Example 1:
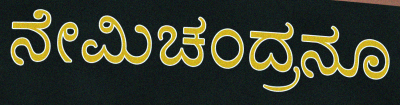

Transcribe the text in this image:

ನೇಮಿಚಂದ್ರನೂ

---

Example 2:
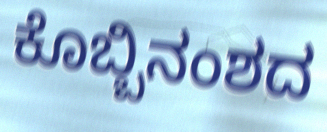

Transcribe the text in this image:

ಕೊಬ್ಬಿನಂಶದ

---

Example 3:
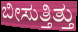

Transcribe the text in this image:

ಬೀಸುತ್ತಿತ್ತು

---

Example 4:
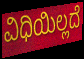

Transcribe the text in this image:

ವಿಧಿಯಿಲ್ಲದೆ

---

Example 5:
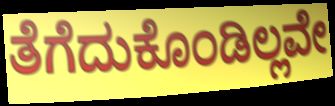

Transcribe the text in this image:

ತೆಗೆದುಕೊಂಡಿಲ್ಲವೇ